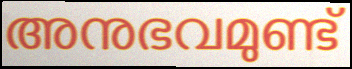
അനുഭവമുണ്ട്